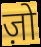
ज़ो